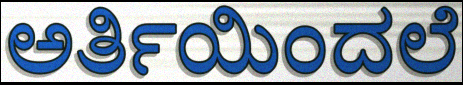
ಅರ್ತಿಯಿಂದಲೆ